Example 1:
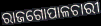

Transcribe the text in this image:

ରାଜଗୋପାଳଚାରୀ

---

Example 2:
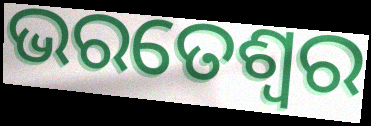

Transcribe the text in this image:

ଭରତେଶ୍ଵର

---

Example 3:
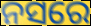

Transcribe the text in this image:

ନସରେ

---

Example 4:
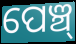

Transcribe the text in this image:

ପେଞ୍ଚ୍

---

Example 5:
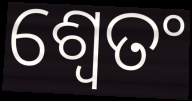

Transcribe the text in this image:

ଶ୍ଵେତଂ